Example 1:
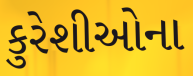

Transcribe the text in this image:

કુરેશીઓના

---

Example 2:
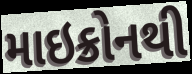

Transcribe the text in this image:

માઇક્રોનથી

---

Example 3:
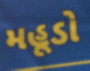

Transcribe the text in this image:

મહૂડો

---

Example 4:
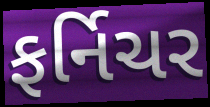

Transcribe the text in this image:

ફર્નિચર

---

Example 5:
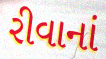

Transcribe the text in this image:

રીવાનાં